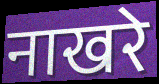
नाखरे